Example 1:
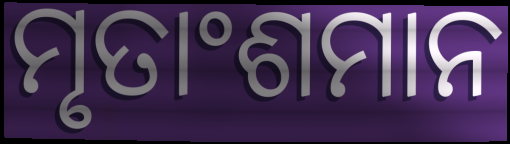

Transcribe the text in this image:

ମୃତାଂଶମାନ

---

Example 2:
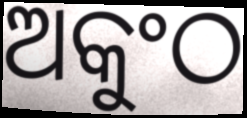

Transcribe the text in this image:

ଅକୁଂଠ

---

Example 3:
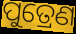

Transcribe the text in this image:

ପୁତ୍ରେଣ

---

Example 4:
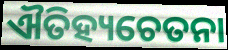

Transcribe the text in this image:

ଐତିହ୍ୟଚେତନା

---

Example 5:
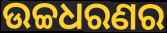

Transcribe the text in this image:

ଉଚ୍ଚଧରଣର